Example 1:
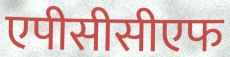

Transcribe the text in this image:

एपीसीसीएफ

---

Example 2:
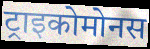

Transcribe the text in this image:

ट्राइकोमोनस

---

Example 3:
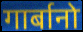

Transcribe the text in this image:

गार्बानो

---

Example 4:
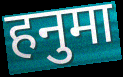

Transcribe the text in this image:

हनुमा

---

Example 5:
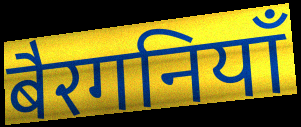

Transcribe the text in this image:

बैरगनियाँ